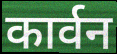
कार्वन